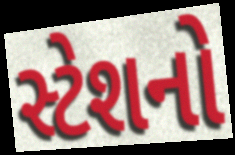
સ્ટેશનો